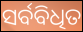
ସର୍ବବିଧିତ